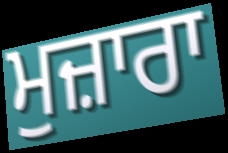
ਮੁਜ਼ਾਰਾ